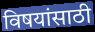
विषयांसाठी